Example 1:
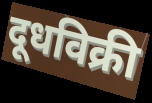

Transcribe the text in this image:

दूधविक्री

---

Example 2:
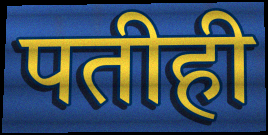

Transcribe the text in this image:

पतीही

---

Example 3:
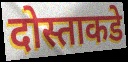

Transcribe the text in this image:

दोस्ताकडे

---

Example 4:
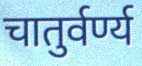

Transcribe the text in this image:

चातुर्वर्ण्य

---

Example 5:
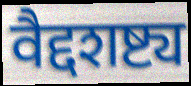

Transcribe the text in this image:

वैद्दशष्ट्य